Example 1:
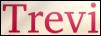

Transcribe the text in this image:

Trevi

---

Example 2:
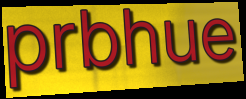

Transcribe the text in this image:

prbhue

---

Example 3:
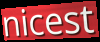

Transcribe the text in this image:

nicest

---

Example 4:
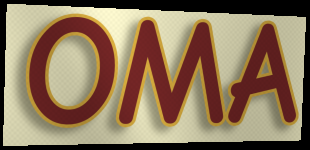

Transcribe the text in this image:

OMA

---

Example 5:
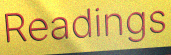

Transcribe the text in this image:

Readings